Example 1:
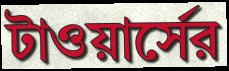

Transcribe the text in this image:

টাওয়ার্সের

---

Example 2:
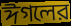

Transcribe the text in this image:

ঈগলের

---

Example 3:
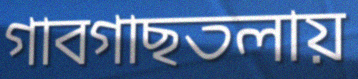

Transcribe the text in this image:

গাবগাছতলায়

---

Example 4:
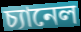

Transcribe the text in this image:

চ্যানেল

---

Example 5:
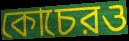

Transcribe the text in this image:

কোচেরও